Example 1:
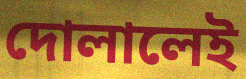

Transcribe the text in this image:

দোলালেই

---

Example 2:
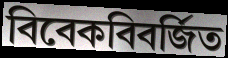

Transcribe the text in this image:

বিবেকবিবর্জিত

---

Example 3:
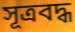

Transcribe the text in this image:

সূত্রবদ্ধ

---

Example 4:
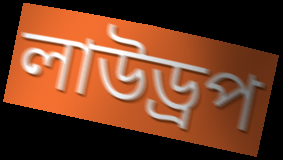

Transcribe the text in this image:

লাউড্রপ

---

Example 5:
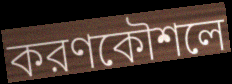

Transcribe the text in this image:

করণকৌশলে